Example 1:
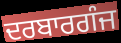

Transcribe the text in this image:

ਦਰਬਾਰਗੰਜ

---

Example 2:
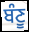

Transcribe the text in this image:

ਬੰਣੂ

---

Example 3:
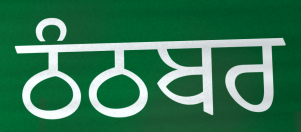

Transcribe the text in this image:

ਠੰਠਬਰ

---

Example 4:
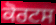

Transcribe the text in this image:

ਕੋਰਟਸ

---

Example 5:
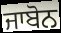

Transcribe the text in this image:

ਜਾਬੋਨ